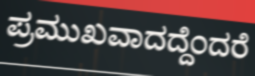
ಪ್ರಮುಖವಾದದ್ದೆಂದರೆ